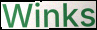
Winks